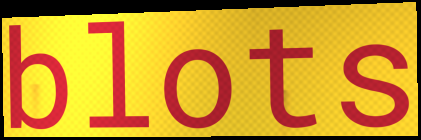
blots